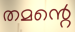
തമന്റെ